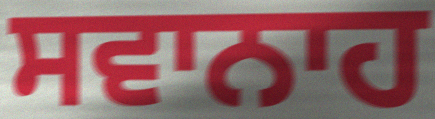
ਸਵਾਨਾਹ